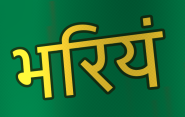
भरियं